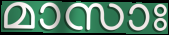
മാസാഃ